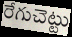
రేగుచెట్టు